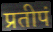
प्रतीपं